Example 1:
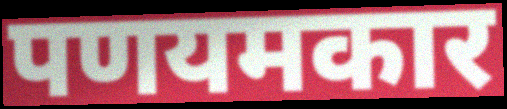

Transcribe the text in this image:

पणयमकार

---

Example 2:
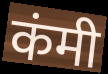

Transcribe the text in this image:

कंमी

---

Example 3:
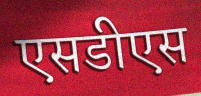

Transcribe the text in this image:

एसडीएस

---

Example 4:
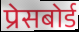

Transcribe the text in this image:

प्रेसबोर्ड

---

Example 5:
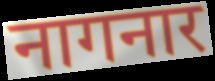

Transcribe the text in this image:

नागनार